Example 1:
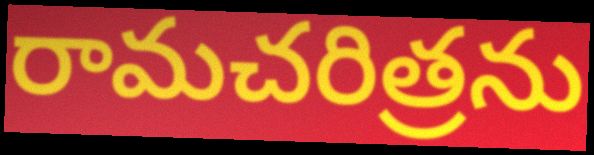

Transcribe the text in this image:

రామచరిత్రను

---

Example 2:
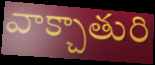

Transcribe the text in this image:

వాక్చాతురి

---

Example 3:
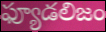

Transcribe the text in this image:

ఫ్యూడలిజం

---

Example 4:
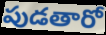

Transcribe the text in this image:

పుడతారో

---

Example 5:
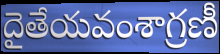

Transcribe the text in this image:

దైతేయవంశాగ్రణీ